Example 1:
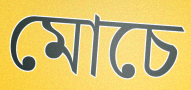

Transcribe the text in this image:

মোচে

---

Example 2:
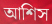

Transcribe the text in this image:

আশিস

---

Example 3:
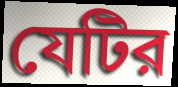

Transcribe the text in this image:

যেটির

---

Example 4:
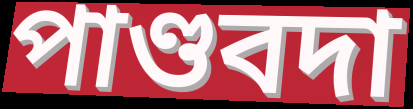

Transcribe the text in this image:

পাণ্ডবদা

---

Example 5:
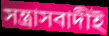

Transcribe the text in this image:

সন্ত্রাসবাদীই